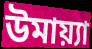
উমায়্যা